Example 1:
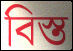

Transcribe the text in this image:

বিস্ত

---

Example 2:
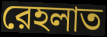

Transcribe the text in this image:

রেহলাত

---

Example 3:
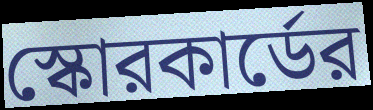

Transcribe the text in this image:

স্কোরকার্ডের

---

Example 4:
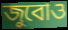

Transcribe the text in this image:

জুবোও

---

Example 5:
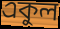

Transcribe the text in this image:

একুল